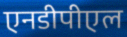
एनडीपीएल